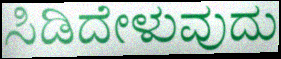
ಸಿಡಿದೇಳುವುದು